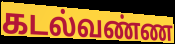
கடல்வண்ண